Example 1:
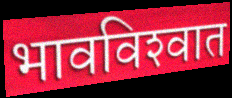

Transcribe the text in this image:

भावविश्वात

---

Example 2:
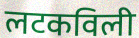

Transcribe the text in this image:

लटकविली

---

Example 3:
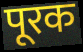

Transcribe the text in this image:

पूरक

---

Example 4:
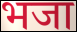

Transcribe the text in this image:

भजा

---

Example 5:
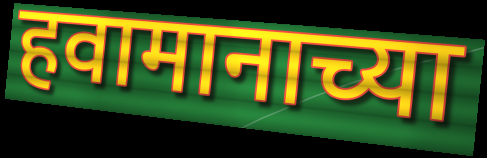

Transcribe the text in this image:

हवामानाच्या